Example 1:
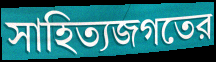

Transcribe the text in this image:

সাহিত্যজগতের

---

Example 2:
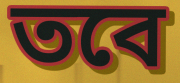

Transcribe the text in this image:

তবে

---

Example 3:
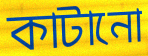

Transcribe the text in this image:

কাটানো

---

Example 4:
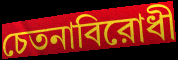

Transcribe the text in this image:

চেতনাবিরোধী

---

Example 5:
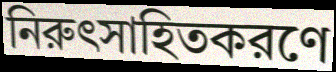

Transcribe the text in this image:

নিরুৎসাহিতকরণে